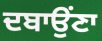
ਦਬਾਉਂਣਾ